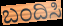
ಬಂದಿಸಿ